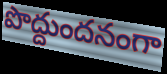
పొద్దుందనంగా